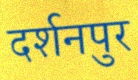
दर्शनपुर